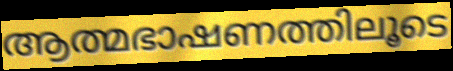
ആത്മഭാഷണത്തിലൂടെ